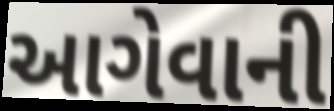
આગેવાની